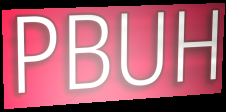
PBUH